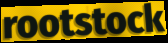
rootstock